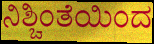
ನಿಶ್ಚಿಂತೆಯಿಂದ